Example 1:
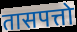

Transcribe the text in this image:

तासपत्तो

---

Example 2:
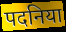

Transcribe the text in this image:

पदनिया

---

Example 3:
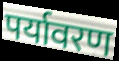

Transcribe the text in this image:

पर्यावरण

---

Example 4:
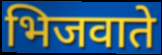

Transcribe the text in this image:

भिजवाते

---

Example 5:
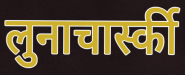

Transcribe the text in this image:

लुनाचार्स्की